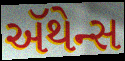
ઍથેન્સ